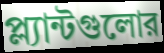
প্ল্যান্টগুলোর